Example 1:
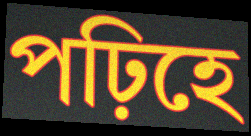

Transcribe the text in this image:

পঢ়িহে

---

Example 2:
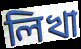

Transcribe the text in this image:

লিখা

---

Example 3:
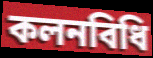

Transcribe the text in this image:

কলনবিধি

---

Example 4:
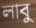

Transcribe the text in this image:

লাবু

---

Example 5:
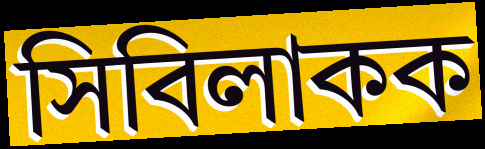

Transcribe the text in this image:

সিবিলাকক